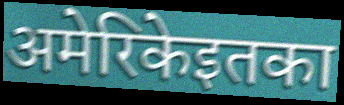
अमेरिकेइतका